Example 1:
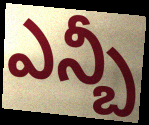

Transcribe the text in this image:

ఎన్బీ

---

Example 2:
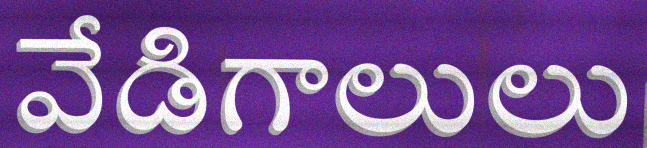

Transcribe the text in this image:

వేడిగాలులు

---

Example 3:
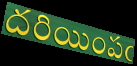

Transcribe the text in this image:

దరియింపఁ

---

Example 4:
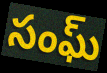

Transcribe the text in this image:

సంఘ్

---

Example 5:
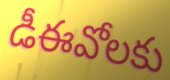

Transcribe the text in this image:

డీఈవోలకు